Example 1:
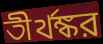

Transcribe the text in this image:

তীর্থঙ্কর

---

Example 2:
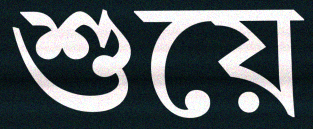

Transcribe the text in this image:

শুয়ে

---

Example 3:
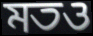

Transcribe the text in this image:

মতও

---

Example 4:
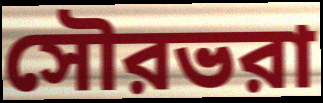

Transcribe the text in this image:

সৌরভরা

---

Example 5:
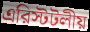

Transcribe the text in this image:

এরিস্টটলীয়